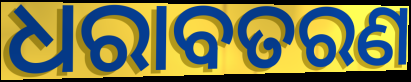
ଧରାବତରଣ